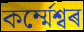
কৰ্ম্মেশ্বৰ